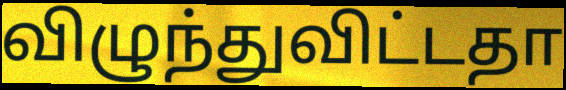
விழுந்துவிட்டதா